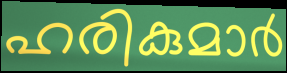
ഹരികുമാർ